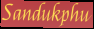
Sandukphu